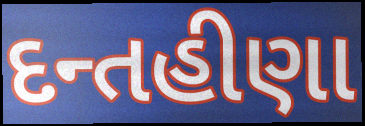
દન્તહીણા